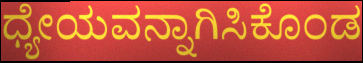
ಧ್ಯೇಯವನ್ನಾಗಿಸಿಕೊಂಡ